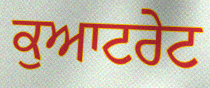
ਕੁਆਟਰੇਟ